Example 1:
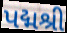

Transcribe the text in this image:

પદ્મશ્રી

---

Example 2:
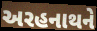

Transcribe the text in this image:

અરહનાથને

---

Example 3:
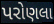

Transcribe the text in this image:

પરોણલા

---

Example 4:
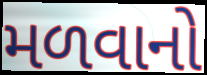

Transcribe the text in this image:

મળવાનો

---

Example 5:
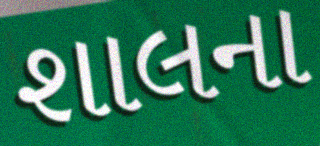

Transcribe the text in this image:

શાલના